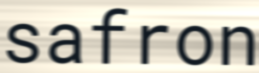
safron